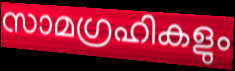
സാമഗ്രഹികളും